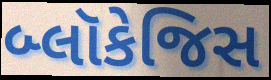
બ્લૉકેજિસ